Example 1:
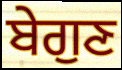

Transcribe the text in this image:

ਬੇਗੁਣ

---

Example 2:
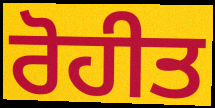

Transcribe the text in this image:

ਰੋਹੀਤ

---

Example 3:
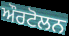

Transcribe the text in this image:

ਔਰਟੋਲਨ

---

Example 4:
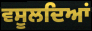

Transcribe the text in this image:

ਵਸੂਲਦਿਆਂ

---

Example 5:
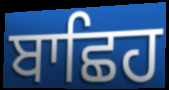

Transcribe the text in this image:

ਬਾਛਿਹ